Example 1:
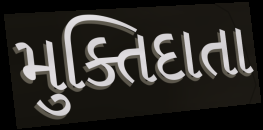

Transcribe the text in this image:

મુક્તિદાતા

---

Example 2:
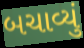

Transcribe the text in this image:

બચાવ્યું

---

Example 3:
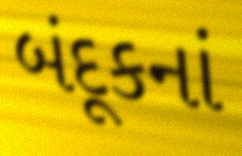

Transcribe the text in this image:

બંદૂકનાં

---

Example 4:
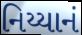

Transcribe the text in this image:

નિય્યાનં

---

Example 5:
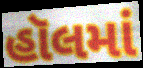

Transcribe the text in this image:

હૉલમાં